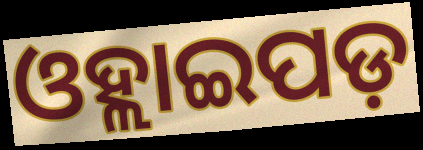
ଓହ୍ଲାଇପଡ଼